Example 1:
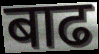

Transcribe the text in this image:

बाढ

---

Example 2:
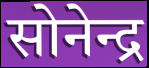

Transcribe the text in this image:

सोनेन्द्र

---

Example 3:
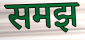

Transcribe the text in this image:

समझ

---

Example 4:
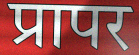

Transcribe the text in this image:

प्रापर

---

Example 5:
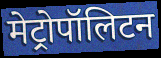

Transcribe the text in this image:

मेट्रोपॉलिटन